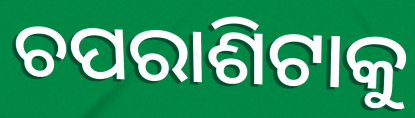
ଚପରାଶିଟାକୁ